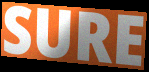
SURE